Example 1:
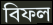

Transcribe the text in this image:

বিফল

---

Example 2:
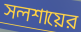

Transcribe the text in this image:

সলশায়ের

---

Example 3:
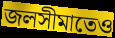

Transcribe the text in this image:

জলসীমাতেও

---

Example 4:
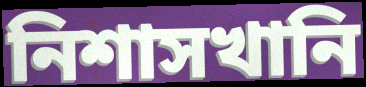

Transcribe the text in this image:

নিশাসখানি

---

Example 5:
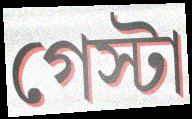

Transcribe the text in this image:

গেস্টা